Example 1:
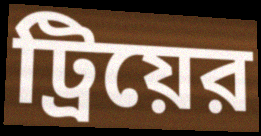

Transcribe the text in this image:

ট্রিয়ের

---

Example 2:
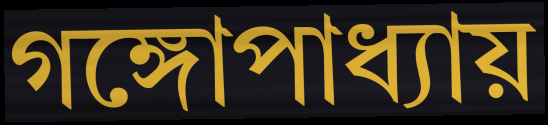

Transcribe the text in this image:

গঙ্গোপাধ্যায়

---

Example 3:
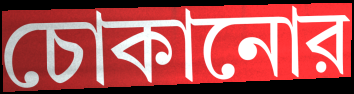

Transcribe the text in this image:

চোকানোর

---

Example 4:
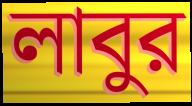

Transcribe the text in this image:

লাবুর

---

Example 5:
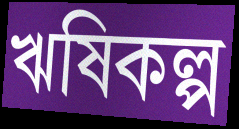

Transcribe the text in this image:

ঋষিকল্প